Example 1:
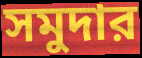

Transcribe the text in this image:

সমুদার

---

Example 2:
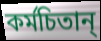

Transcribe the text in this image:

কর্মচিতান্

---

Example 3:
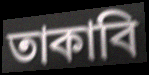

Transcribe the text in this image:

তাকাবি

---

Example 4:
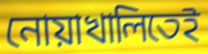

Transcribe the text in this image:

নোয়াখালিতেই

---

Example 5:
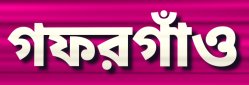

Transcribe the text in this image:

গফরগাঁও